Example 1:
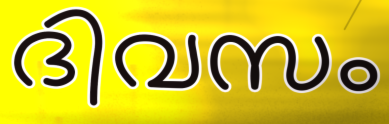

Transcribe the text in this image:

ദിവസം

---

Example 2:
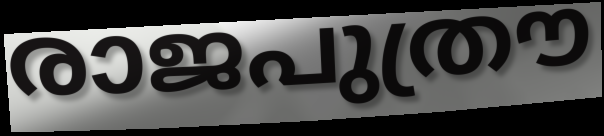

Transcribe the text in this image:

രാജപുത്രൗ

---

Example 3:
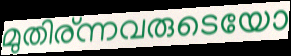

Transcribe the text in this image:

മുതിര്ന്നവരുടെയോ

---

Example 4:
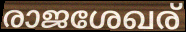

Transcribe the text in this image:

രാജശേഖര്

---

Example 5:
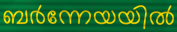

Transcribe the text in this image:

ബർന്നേയയിൽ